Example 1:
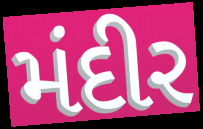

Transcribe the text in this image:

મંદીર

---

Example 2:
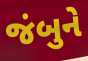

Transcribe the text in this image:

જંબુને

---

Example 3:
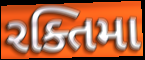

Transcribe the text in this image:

રક્તિમા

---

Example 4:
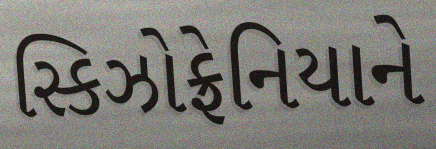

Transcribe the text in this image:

સ્કિઝોફ્રેનિયાને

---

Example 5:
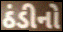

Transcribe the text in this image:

ઠંડીનો